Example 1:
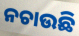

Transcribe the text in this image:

ନଚାଉଛି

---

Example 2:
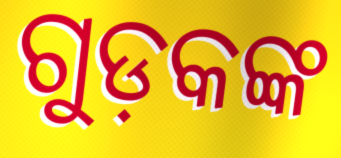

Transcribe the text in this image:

ଗୁଡ଼କଙ୍କ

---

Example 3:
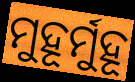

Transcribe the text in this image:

ମୁହୂର୍ମୁହୂ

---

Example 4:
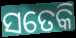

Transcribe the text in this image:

ସତେକି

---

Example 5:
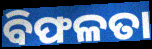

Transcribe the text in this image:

ବିଫଳତା